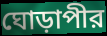
ঘোড়াপীর